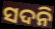
ସଦନି